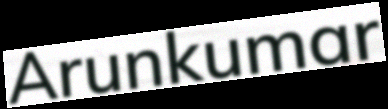
Arunkumar